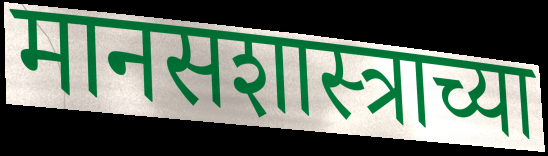
मानसशास्त्राच्या